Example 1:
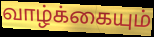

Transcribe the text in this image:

வாழ்க்கையும்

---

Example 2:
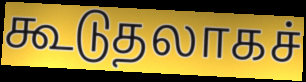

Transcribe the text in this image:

கூடுதலாகச்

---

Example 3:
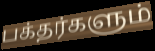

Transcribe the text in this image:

பக்தர்களும்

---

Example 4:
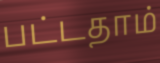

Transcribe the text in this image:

பட்டதாம்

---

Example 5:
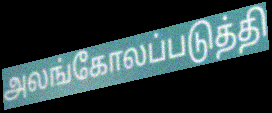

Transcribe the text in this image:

அலங்கோலப்படுத்தி